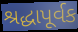
શ્રદ્ધાપૂર્વક